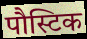
पौस्टिक